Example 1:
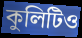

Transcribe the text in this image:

কুলিটিও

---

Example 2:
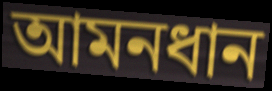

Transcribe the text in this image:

আমনধান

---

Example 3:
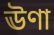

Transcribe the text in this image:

ঊণা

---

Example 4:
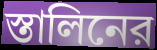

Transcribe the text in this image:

স্তালিনের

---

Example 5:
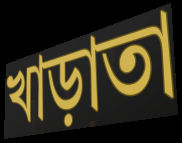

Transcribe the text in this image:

খাড়াতা